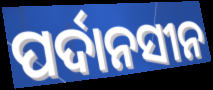
ପର୍ଦାନସୀନ